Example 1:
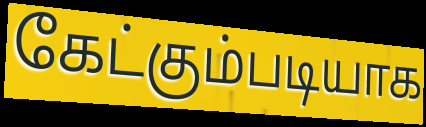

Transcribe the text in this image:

கேட்கும்படியாக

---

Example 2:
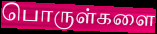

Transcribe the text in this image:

பொருள்களை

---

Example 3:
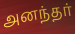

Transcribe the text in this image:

அனந்தர்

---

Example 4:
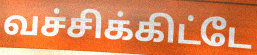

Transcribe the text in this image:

வச்சிக்கிட்டே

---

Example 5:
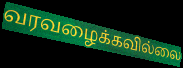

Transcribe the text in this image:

வரவழைக்கவில்லை